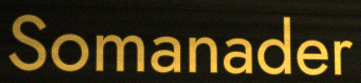
Somanader